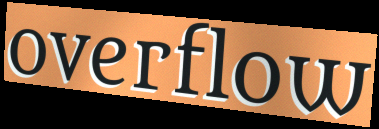
overflow